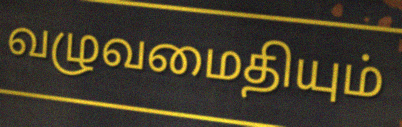
வழுவமைதியும்